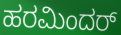
ಹರಮಿಂದರ್